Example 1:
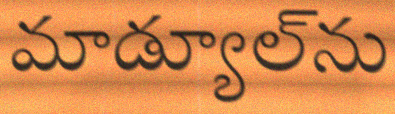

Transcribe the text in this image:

మాడ్యూల్‌ను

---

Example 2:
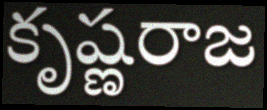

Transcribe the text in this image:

కృష్ణరాజ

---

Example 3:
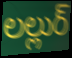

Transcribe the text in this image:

లల్లుర్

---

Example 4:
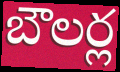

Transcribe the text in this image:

బౌలర్ల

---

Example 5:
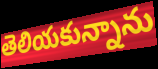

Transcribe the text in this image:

తెలియకున్నాను